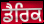
ਡੈਰਿਕ